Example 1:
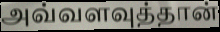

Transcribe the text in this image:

அவ்வளவுத்தான்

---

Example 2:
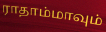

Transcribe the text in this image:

ராதாம்மாவும்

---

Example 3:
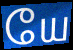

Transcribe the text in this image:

யே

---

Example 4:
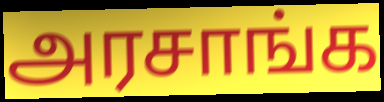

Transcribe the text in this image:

அரசாங்க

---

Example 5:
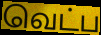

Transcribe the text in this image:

வெட்ப